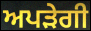
ਅਪੜੇਗੀ